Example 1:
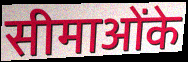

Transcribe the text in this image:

सीमाओंके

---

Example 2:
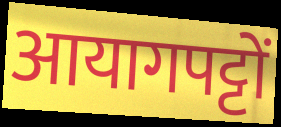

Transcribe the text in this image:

आयागपट्टों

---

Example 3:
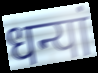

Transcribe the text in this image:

धन्यां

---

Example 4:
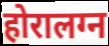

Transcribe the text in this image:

होरालग्न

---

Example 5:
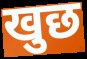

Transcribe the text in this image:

खुछ